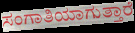
ಸಂಗಾತಿಯಾಗುತ್ತಾರೆ